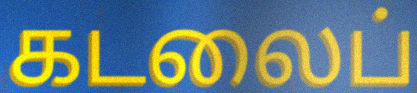
கடலைப்